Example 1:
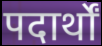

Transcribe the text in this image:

पदार्थों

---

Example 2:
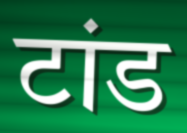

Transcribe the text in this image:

टांड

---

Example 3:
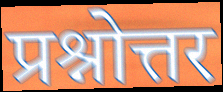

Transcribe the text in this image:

प्रश्नोत्तर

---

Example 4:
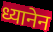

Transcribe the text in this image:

ध्यानेन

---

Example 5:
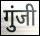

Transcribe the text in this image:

गुंजी